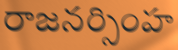
రాజనర్సింహ